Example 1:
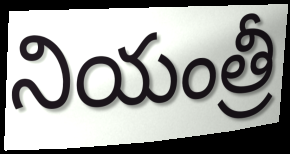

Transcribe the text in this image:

నియంత్రీ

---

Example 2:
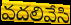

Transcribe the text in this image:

వదలివేసి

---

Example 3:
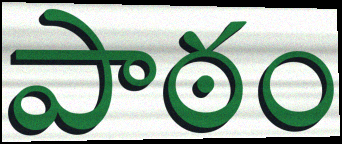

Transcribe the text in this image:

పాఠం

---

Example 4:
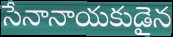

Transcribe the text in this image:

సేనానాయకుడైన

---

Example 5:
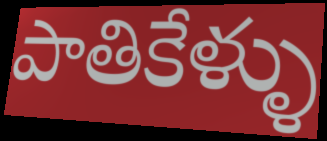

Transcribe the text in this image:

పాతికేళ్ళు